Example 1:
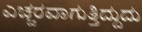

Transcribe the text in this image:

ಎಚ್ಚರವಾಗುತ್ತಿದ್ದುದು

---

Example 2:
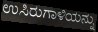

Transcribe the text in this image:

ಉಸಿರುಗಾಳಿಯನ್ನು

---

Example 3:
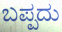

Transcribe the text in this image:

ಬಪ್ಪದು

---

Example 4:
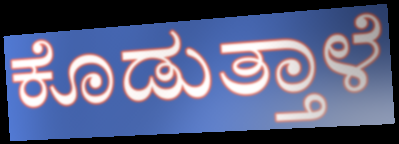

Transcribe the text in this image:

ಕೊಡುತ್ತಾಳೆ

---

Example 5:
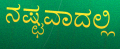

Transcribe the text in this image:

ನಷ್ಟವಾದಲ್ಲಿ